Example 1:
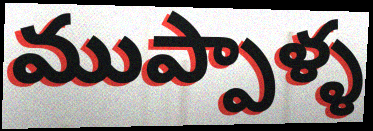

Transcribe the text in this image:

ముప్పాళ్ళ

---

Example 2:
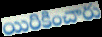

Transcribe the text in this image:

యిరికించారు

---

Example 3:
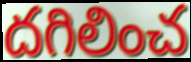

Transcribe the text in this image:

దగిలించ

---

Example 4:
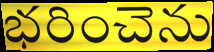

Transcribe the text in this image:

భరించెను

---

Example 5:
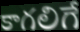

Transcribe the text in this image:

కాగలిగే